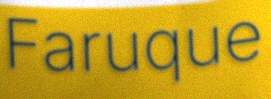
Faruque